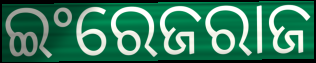
ଇଂରେଜରାଜ